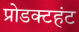
प्रोडक्टहंट